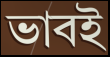
ভাবই